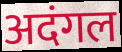
अदंगल